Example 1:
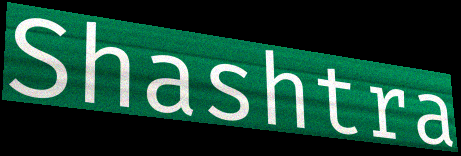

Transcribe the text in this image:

Shashtra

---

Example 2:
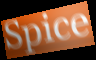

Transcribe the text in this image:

Spice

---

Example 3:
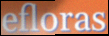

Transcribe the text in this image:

efloras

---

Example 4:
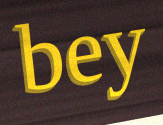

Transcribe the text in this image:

bey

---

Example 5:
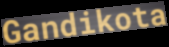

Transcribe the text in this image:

Gandikota